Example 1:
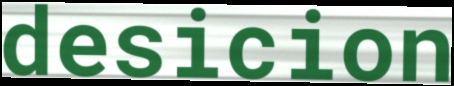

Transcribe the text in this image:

desicion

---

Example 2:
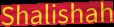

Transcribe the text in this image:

Shalishah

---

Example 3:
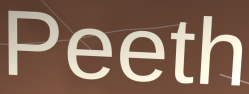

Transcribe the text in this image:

Peeth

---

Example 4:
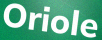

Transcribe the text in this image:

Oriole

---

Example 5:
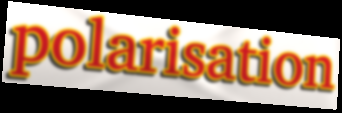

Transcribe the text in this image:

polarisation